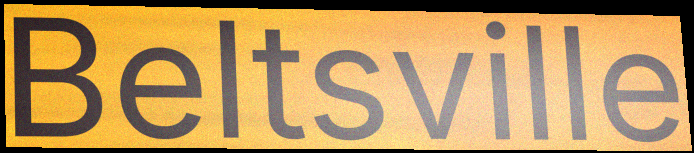
Beltsville